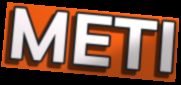
METI